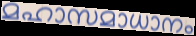
മഹാസമാധാനം